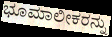
ಭೂಮಾಲೀಕರನ್ನು